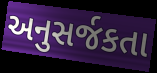
અનુસર્જકતા